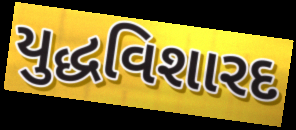
યુદ્ધવિશારદ